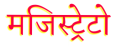
मजिस्ट्रेटो